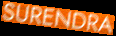
SURENDRA